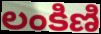
లంకిణి